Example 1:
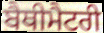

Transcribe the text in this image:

ਬੈਥੀਮੈਟਰੀ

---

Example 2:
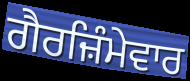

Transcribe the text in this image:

ਗੈਰਜ਼ਿੰਮੇਵਾਰ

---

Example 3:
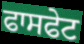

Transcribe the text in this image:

ਫਾਸਫੇਟ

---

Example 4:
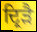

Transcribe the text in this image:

ਦ੍ਰਿੜੈ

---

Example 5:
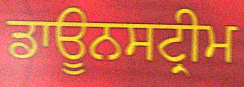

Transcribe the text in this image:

ਡਾਊਨਸਟ੍ਰੀਮ